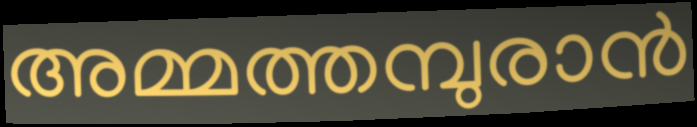
അമ്മത്തമ്പുരാൻ